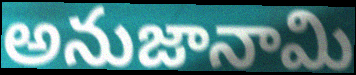
అనుజానామి